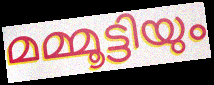
മമ്മൂട്ടിയും